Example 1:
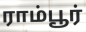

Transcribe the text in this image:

ராம்பூர்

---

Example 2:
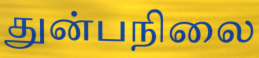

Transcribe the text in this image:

துன்பநிலை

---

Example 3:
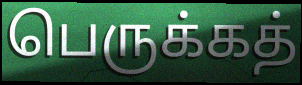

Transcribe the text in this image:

பெருக்கத்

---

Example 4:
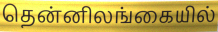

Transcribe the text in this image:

தென்னிலங்கையில்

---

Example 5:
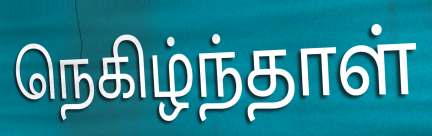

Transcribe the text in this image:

நெகிழ்ந்தாள்